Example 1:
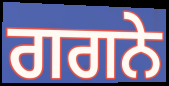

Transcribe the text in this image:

ਗਗਨੇ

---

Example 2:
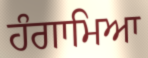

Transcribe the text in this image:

ਹੰਗਾਮਿਆ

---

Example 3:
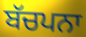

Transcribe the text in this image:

ਬੱਚਪਨਾ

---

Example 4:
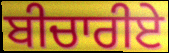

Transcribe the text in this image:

ਬੀਚਾਰੀਏ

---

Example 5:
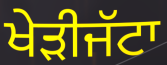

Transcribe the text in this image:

ਖੇੜੀਜੱਟਾ